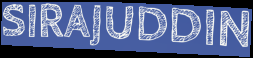
SIRAJUDDIN